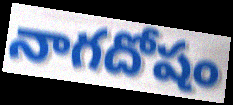
నాగదోషం